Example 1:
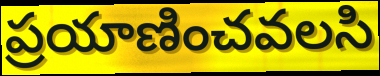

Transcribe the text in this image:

ప్రయాణించవలసి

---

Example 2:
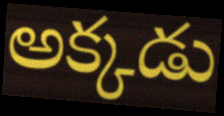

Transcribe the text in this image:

అక్కడు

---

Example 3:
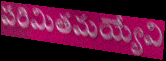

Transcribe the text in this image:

పరిమితమయ్యేవి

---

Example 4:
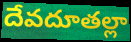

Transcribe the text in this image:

దేవదూతల్లా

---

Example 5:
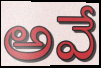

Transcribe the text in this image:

అవే